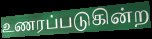
உணரப்படுகின்ற